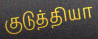
குடுத்தியா